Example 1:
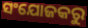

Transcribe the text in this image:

ସଂଯୋଜକରୁ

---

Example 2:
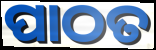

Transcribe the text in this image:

ପାଠତ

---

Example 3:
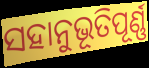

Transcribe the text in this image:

ସହାନୁଭୂତିପୂର୍ଣ୍ଣ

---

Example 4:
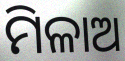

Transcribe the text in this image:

ମିଳାଅ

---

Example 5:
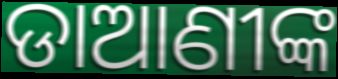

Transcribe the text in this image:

ଡାଆଣୀଙ୍କ